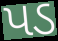
પડ